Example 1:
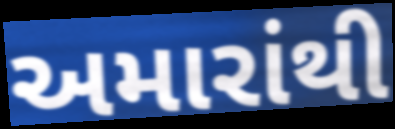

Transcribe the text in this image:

અમારાંથી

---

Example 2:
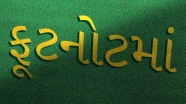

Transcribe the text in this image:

ફૂટનોટમાં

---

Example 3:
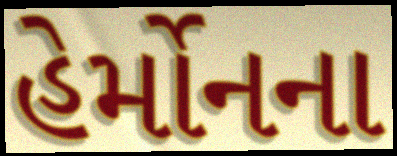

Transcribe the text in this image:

હેર્મોનના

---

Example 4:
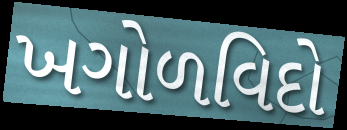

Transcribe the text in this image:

ખગોળવિદો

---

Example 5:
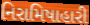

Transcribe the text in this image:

નિરામિષાહારી